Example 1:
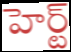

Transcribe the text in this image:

హెర్ట్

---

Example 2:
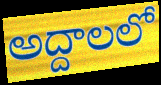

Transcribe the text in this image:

అద్దాలలో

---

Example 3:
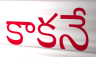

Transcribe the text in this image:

కాకనే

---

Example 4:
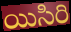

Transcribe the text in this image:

యిసిరి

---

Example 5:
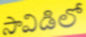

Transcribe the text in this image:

సావిడిలో